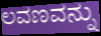
ಲವಣವನ್ನು